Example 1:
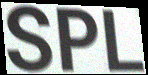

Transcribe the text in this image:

SPL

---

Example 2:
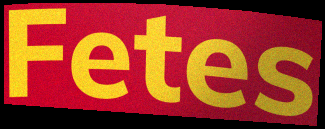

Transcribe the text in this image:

Fetes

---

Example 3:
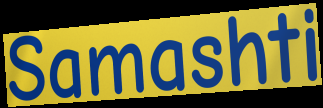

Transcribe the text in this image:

Samashti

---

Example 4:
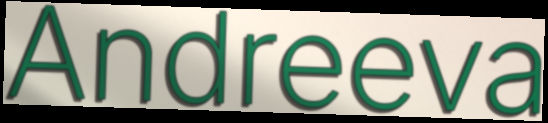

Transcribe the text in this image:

Andreeva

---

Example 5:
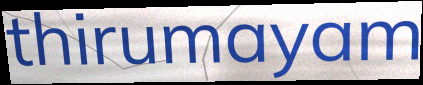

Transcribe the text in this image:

thirumayam